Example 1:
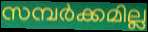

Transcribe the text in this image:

സമ്പർക്കമില്ല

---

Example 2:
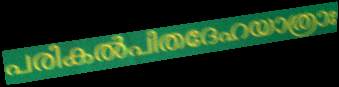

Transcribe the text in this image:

പരികൽപിതദേഹയാത്രാഃ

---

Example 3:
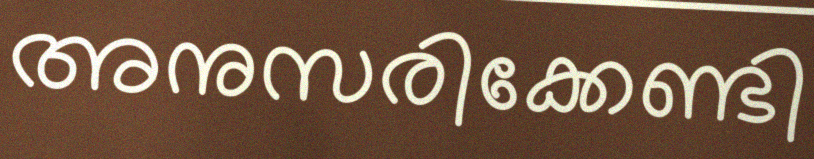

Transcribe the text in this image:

അനുസരിക്കേണ്ടി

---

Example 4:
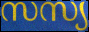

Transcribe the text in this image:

സസ്യ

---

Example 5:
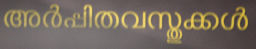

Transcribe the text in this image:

അർപ്പിതവസ്തുക്കൾ